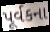
પૂર્વકના